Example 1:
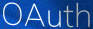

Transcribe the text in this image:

OAuth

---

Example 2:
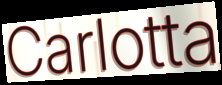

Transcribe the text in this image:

Carlotta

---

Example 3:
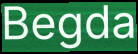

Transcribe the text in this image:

Begda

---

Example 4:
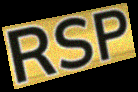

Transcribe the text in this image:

RSP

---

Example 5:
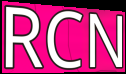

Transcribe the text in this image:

RCN